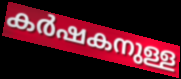
കർഷകനുള്ള